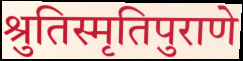
श्रुतिस्मृतिपुराणे